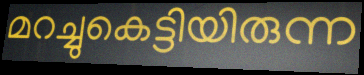
മറച്ചുകെട്ടിയിരുന്ന